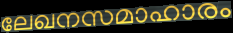
ലേഖനസമാഹാരം